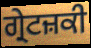
ਗ੍ਰੇਟਜ਼ਕੀ